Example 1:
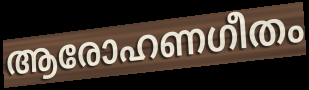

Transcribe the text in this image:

ആരോഹണഗീതം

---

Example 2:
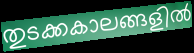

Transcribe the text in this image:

തുടക്കകാലങ്ങളിൽ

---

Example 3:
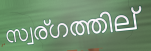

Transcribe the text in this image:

സ്വര്ഗത്തില്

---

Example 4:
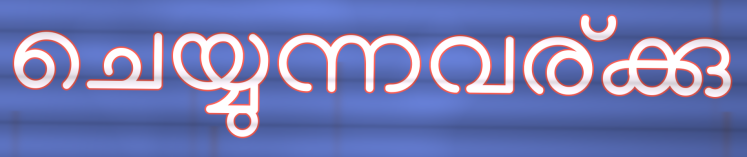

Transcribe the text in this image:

ചെയ്യുന്നവര്ക്കു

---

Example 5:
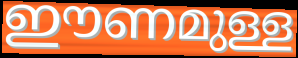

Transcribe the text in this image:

ഈണമുള്ള